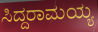
ಸಿದ್ದರಾಮಯ್ಯ